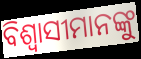
ବିଶ୍ୱାସୀମାନଙ୍କୁ